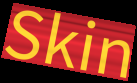
Skin